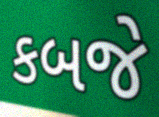
કબજે